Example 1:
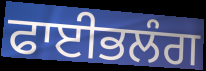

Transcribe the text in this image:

ਫਾਈਭਲੰਗ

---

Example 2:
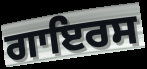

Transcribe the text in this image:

ਗਾਇਰਸ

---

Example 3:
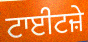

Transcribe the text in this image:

ਟਾਈਟਜ਼ੇ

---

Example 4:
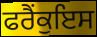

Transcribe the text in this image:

ਫਰੈਂਕੁਇਸ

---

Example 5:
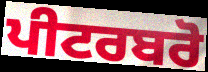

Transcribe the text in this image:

ਪੀਟਰਬਰੋ